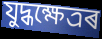
যুদ্ধক্ষেত্ৰৰ